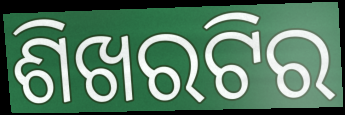
ଶିଖରଟିର